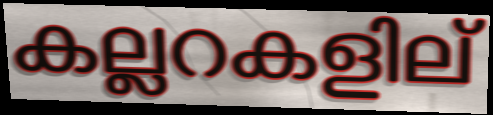
കല്ലറകളില്